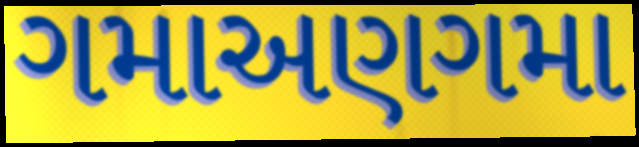
ગમાઅણગમા